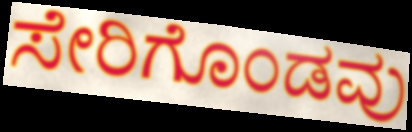
ಸೇರಿಗೊಂಡವು